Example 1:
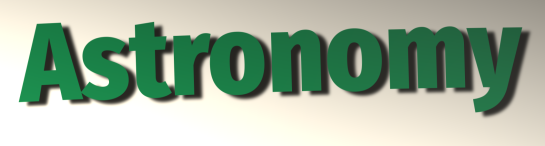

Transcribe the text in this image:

Astronomy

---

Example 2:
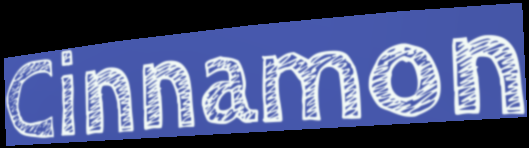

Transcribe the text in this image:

Cinnamon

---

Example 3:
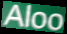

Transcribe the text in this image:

Aloo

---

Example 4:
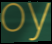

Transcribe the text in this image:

oy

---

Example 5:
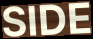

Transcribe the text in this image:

SIDE